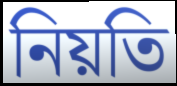
নিয়তি